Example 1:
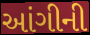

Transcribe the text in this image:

આંગીની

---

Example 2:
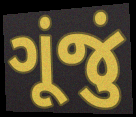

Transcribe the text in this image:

ગૂંજું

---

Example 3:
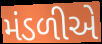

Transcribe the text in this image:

મંડળીએ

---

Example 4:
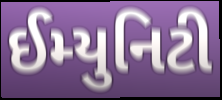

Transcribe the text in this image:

ઈમ્યુનિટી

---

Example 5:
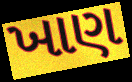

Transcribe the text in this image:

ખાણ